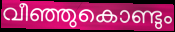
വീഞ്ഞുകൊണ്ടും